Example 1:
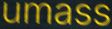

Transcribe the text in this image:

umass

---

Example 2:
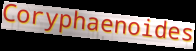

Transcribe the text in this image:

Coryphaenoides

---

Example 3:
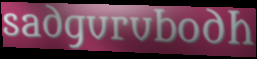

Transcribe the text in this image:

sadgurubodh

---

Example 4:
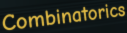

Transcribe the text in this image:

Combinatorics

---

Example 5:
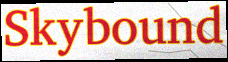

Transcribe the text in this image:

Skybound